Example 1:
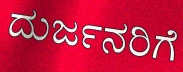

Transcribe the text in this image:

ದುರ್ಜನರಿಗೆ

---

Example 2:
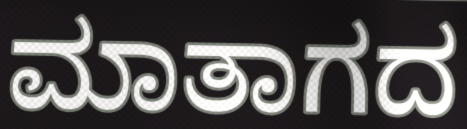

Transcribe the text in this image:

ಮಾತಾಗದ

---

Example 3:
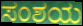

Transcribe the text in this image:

ಸಂಶಯ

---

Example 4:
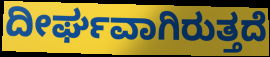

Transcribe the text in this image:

ದೀರ್ಘವಾಗಿರುತ್ತದೆ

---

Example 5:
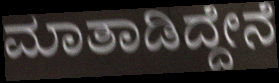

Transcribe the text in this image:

ಮಾತಾಡಿದ್ದೇನೆ